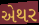
એથર